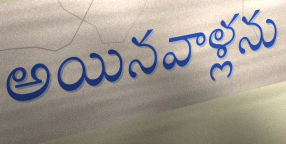
అయినవాళ్లను